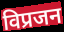
विप्रजन